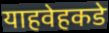
याहवेहकडे